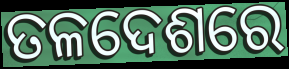
ତଳଦେଶରେ